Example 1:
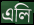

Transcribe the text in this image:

এলি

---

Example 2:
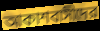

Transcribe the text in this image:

আকাশবাসীদের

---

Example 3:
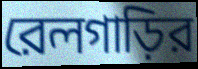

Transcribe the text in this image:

রেলগাড়ির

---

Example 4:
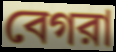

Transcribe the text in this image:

বেগরা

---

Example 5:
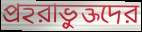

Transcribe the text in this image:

প্রহরাভুক্তদের